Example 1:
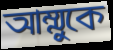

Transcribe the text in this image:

আম্মুকে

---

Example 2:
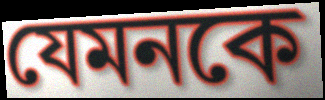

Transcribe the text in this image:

যেমনকে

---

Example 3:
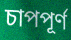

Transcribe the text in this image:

চাপপূর্ণ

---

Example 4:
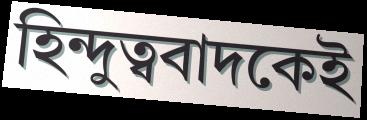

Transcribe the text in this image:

হিন্দুত্ববাদকেই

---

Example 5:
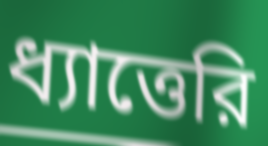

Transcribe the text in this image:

ধ্যাত্তেরি